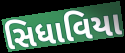
સિધાવિયા